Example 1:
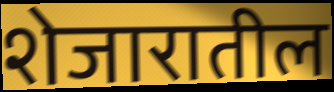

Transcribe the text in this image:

शेजारातील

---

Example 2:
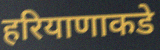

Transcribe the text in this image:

हरियाणाकडे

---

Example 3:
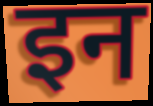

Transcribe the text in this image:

इन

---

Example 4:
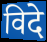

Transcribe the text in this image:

विदे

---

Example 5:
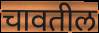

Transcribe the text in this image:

चावतील